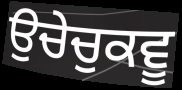
ਉਚੇਚੁਕਵੂ